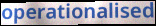
operationalised